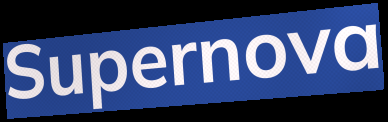
Supernova